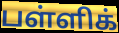
பள்ளிக்